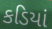
કડિયાં